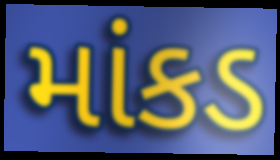
માંકડ